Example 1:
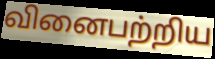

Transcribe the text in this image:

வினைபற்றிய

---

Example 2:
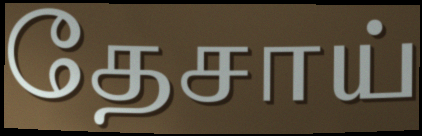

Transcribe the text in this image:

தேசாய்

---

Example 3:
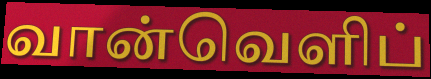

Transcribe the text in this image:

வான்வெளிப்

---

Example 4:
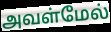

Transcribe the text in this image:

அவள்மேல்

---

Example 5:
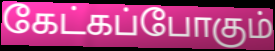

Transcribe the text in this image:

கேட்கப்போகும்